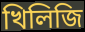
খিলিজি